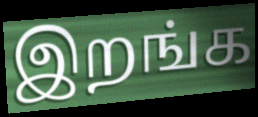
இறங்க